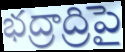
భద్రాద్రిపై